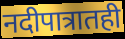
नदीपात्रातही